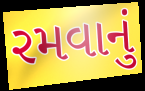
રમવાનું